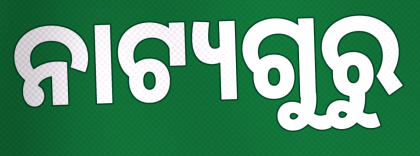
ନାଟ୍ୟଗୁରୁ